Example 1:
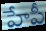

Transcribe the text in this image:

హేపీ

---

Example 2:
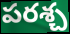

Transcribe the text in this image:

పరశ్చ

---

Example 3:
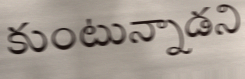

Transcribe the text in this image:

కుంటున్నాడని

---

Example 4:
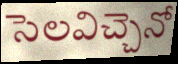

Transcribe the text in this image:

సెలవిచ్చెనో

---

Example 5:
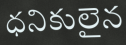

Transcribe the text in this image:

ధనికులైన